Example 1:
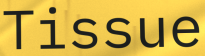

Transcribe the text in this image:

Tissue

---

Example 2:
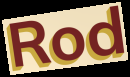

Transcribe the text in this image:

Rod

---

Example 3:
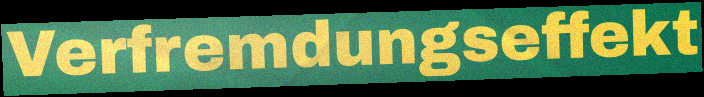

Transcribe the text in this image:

Verfremdungseffekt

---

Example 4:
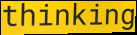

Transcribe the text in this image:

thinking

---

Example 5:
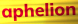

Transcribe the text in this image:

aphelion